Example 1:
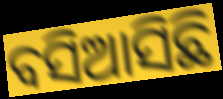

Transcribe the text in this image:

ବସିଆସିଛି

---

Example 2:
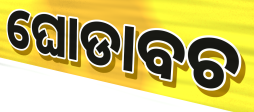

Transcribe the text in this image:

ଘୋଡାବଚ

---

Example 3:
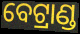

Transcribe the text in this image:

ବେଟ୍ରାଣ୍ଡ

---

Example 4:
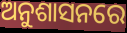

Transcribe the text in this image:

ଅନୁଶାସନରେ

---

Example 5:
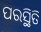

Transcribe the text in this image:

ପରସ୍ଥିତି